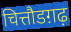
चित्तौडग़ढ़